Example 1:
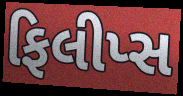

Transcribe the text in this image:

ફિલીપ્સ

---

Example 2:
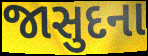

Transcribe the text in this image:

જાસુદના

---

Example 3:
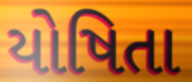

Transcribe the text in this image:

યોષિતા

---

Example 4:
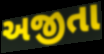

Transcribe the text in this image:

અજીતા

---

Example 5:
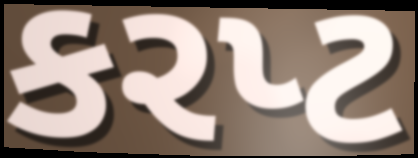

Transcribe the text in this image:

કરપ્ટ